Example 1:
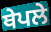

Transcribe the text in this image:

ਥੇਪਲੇ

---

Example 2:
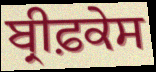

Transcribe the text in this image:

ਬ੍ਰੀਫ਼ਕੇਸ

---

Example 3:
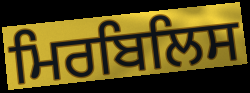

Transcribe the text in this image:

ਮਿਰਬਿਲਿਸ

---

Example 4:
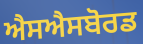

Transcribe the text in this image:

ਐਸਐਸਬੋਰਡ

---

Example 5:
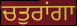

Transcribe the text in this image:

ਚਤੁਰਾਂਗਾ